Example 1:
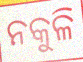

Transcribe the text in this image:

ନକୁଳି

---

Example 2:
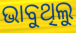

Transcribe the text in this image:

ଭାବୁଥିଲୁ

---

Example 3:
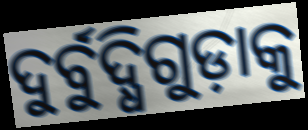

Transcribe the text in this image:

ଦୁର୍ବୁଦ୍ଧିଗୁଡ଼ାକୁ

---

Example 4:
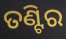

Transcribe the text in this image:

ତଣ୍ଟିର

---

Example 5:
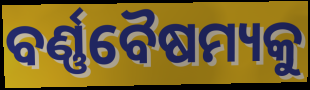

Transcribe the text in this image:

ବର୍ଣ୍ଣବୈଷମ୍ୟକୁ